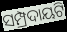
ସମ୍ପ୍ରଦାୟଟି